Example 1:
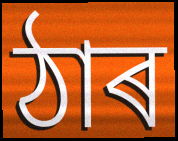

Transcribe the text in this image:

ঠাৰ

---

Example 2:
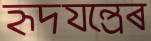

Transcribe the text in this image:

হৃদযন্ত্ৰেৰ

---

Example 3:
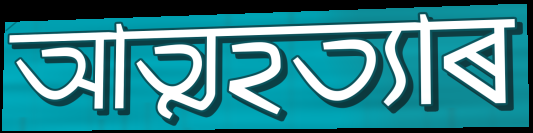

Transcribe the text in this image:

আত্মহত্যাৰ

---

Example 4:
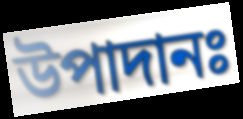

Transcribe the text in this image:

উপাদানঃ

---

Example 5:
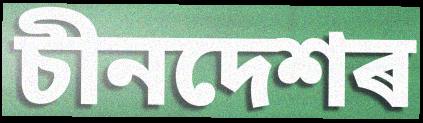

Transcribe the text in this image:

চীনদেশৰ